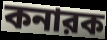
কনারক